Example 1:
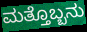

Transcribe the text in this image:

ಮತ್ತೊಬ್ಬನು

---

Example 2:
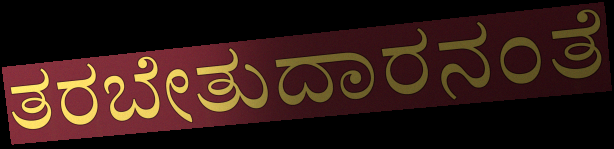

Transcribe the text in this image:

ತರಬೇತುದಾರನಂತೆ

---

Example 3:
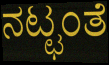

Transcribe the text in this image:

ನಟ್ಟಂತೆ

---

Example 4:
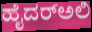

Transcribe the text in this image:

ಹೈದರ್‌ಅಲಿ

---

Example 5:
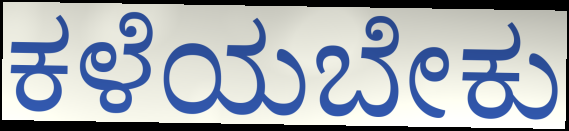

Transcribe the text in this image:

ಕಳೆಯಬೇಕು